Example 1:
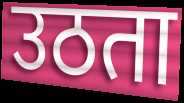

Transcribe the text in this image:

उठता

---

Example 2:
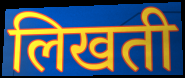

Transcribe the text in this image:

लिखती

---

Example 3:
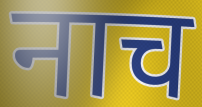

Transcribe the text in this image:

नाच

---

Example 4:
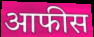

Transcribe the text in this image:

आफीस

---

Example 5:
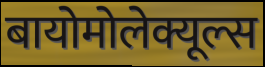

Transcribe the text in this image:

बायोमोलेक्यूल्स